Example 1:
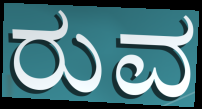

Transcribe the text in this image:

ರುವ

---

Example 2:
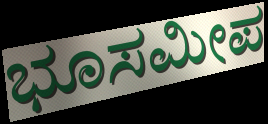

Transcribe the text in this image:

ಭೂಸಮೀಪ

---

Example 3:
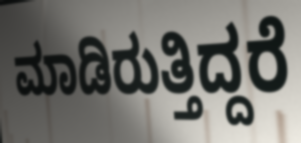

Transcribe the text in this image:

ಮಾಡಿರುತ್ತಿದ್ದರೆ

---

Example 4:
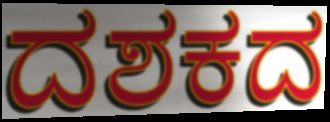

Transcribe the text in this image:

ದಶಕದ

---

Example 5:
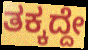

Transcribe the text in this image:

ತಕ್ಕದ್ದೇ